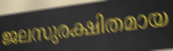
ജലസുരക്ഷിതമായ